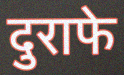
दुराफे